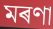
মৰণা